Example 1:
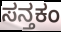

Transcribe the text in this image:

ಸನ್ತಕಂ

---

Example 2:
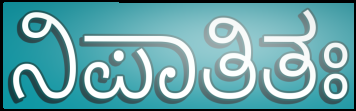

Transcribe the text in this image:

ನಿಪಾತಿತಃ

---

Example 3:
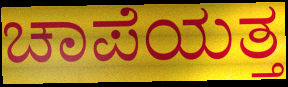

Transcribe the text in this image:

ಚಾಪೆಯತ್ತ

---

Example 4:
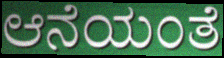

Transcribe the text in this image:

ಆನೆಯಂತೆ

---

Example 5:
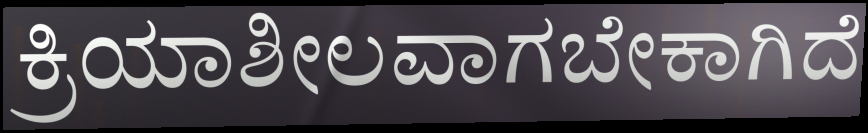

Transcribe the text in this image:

ಕ್ರಿಯಾಶೀಲವಾಗಬೇಕಾಗಿದೆ